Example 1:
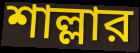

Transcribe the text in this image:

শাল্লার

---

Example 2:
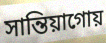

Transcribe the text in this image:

সান্তিয়াগোয়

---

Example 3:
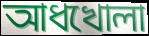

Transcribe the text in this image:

আধখোলা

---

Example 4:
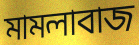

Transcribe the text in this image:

মামলাবাজ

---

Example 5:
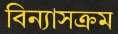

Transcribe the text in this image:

বিন্যাসক্রম